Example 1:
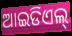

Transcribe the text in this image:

ଆଇଡିଏଲ୍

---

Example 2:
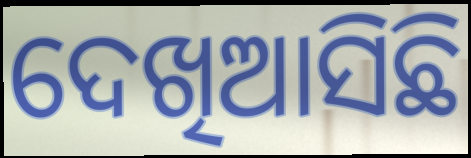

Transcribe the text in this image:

ଦେଖିଆସିଛି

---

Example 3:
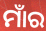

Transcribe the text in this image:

ମାଁର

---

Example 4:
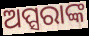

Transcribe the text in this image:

ଅପ୍ସରାଙ୍କ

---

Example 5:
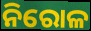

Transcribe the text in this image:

ନିରୋଳ